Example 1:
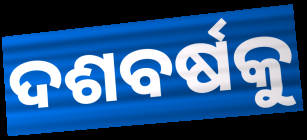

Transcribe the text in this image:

ଦଶବର୍ଷକୁ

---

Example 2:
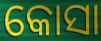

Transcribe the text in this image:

କୋସା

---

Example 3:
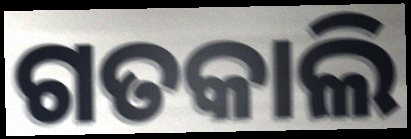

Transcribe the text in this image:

ଗତକାଲି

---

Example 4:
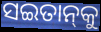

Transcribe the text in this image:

ସଇତାନ୍‌କୁ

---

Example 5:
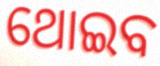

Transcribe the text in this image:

ଥୋଇବ